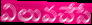
విలువచేసే